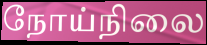
நோய்நிலை